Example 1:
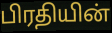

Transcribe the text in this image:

பிரதியின்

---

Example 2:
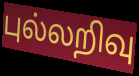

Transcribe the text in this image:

புல்லறிவு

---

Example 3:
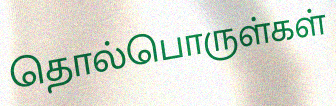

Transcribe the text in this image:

தொல்பொருள்கள்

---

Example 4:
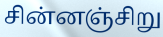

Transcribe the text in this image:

சின்னஞ்சிறு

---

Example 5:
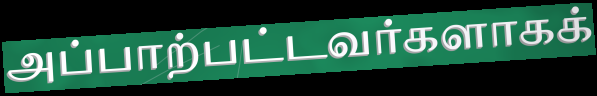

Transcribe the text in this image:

அப்பாற்பட்டவர்களாகக்